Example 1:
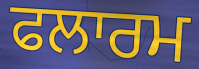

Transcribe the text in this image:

ਫਲਾਰਮ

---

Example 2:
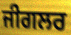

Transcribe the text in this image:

ਜੀਗਲਰ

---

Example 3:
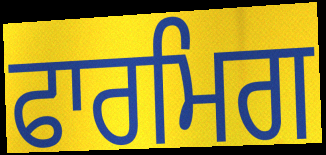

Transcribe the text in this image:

ਫਾਰਮਿਗ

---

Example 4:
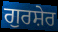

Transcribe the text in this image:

ਗੁਰਸ਼ੇਰ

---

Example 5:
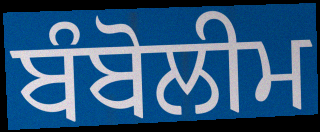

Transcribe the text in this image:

ਬੰਬੋਲੀਮ